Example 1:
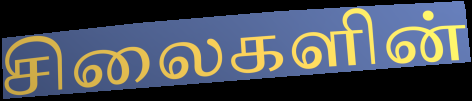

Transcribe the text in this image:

சிலைகளின்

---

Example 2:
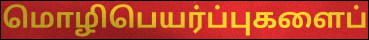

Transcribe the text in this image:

மொழிபெயர்ப்புகளைப்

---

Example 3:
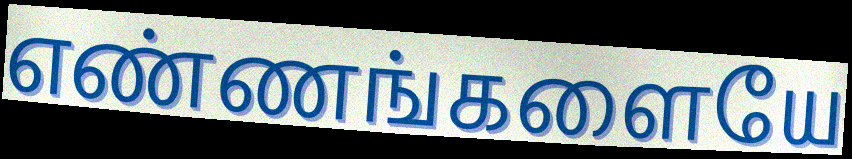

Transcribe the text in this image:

எண்ணங்களையே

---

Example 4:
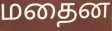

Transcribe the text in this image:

மதைன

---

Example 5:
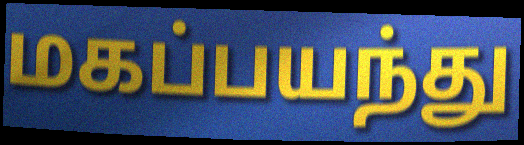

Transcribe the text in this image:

மகப்பயந்து